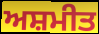
ਅਸ਼ਮੀਤ